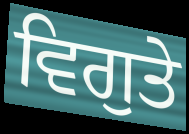
ਵਿਗੁਤੇ